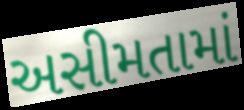
અસીમતામાં